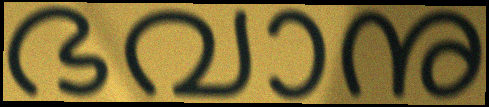
ഭവാനു